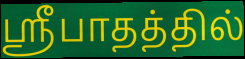
ஸ்ரீபாதத்தில்